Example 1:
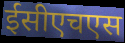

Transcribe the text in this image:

ईसीएचएस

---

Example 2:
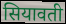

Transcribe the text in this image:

सियावती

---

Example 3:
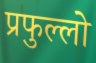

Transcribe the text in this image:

प्रफुल्लो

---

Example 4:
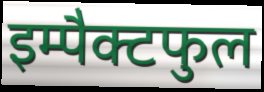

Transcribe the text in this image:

इम्पैक्टफुल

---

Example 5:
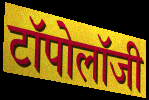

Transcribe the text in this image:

टॉपोलॉजी